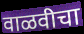
वाळवीचा